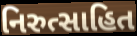
નિરુત્સાહિત